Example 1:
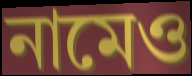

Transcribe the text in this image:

নামেও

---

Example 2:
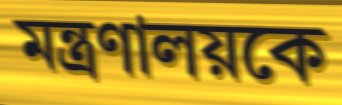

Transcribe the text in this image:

মন্ত্রণালয়কে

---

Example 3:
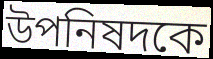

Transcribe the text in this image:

উপনিষদকে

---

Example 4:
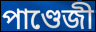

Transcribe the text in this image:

পাণ্ডেজী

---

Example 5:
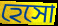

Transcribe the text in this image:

হেসো